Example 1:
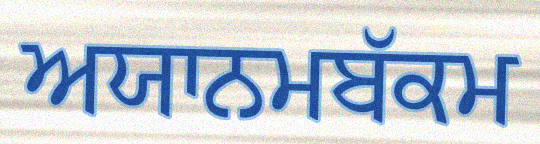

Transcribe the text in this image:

ਅਯਾਨਮਬੱਕਮ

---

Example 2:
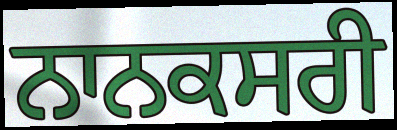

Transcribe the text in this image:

ਨਾਨਕਸਰੀ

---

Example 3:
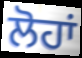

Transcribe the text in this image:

ਲੋਹਾਂ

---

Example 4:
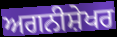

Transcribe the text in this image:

ਅਗਨੀਸ਼ੇਖਰ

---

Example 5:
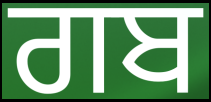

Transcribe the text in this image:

ਗਬ